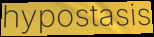
hypostasis